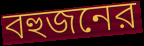
বহুজনের